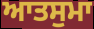
ਆਤਸੁਮਾ